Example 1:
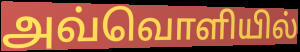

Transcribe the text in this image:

அவ்வொளியில்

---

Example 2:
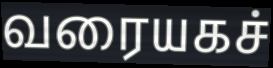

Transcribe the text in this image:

வரையகச்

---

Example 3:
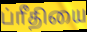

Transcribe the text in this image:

ப்ரீதியை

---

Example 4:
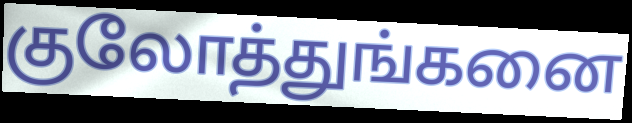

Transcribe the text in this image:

குலோத்துங்கனை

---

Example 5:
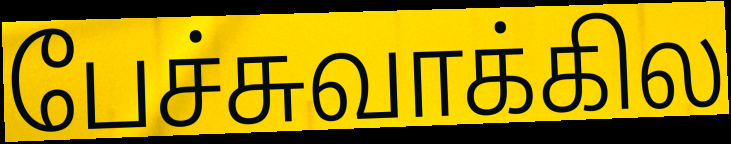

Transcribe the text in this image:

பேச்சுவாக்கில